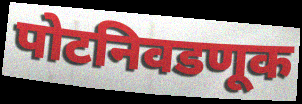
पोटनिवडणूक